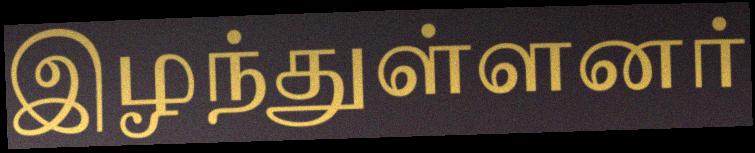
இழந்துள்ளனர்